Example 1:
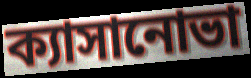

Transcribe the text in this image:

ক্যাসানোভা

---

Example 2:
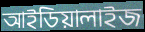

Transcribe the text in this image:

আইডিয়ালাইজ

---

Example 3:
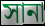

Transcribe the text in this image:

সানা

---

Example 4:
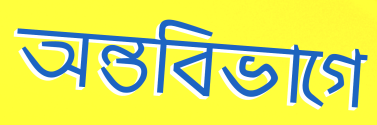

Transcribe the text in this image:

অন্তবিভাগে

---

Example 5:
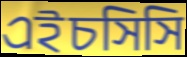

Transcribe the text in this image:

এইচসিসি